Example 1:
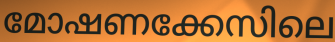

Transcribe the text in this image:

മോഷണക്കേസിലെ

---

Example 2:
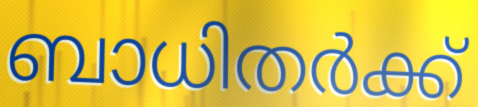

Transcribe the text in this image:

ബാധിതർക്ക്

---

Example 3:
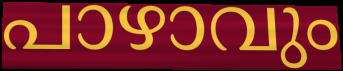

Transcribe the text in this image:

പാഴാവും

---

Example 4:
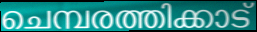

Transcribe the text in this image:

ചെമ്പരത്തിക്കാട്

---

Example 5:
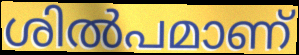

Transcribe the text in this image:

ശിൽപമാണ്